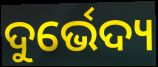
ଦୁର୍ଭେଦ୍ୟ